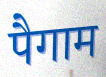
पैगाम